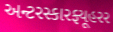
અન્ટરસ્કારફ્યૂહરર